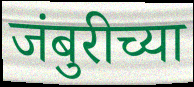
जंबुरीच्या